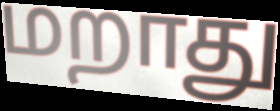
மறாது